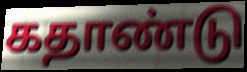
கதாண்டு